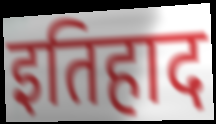
इतिहाद